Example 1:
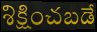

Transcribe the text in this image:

శిక్షించబడే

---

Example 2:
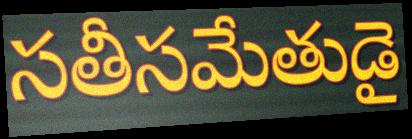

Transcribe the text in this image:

సతీసమేతుడై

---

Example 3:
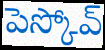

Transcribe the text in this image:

పెస్కోవ్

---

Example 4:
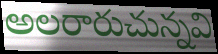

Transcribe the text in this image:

అలరారుచున్నవి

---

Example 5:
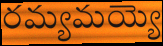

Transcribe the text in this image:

రమ్యమయ్యె